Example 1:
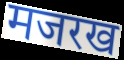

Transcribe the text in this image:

मजरख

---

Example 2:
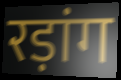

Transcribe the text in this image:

रड़ांग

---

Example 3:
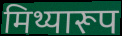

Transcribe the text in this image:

मिथ्यारूप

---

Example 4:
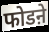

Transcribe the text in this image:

फोडऩे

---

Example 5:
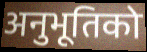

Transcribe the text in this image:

अनुभूतिको